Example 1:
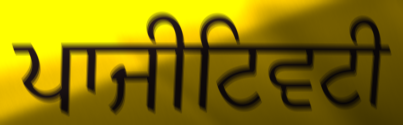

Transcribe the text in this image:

ਪਾਜੀਟਿਵਟੀ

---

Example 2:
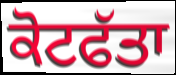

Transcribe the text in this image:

ਕੋਟਫੱਤਾ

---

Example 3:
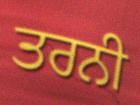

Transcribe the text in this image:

ਤਰਨੀ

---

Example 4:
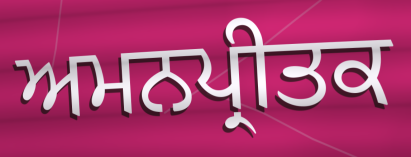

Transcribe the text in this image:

ਅਮਨਪ੍ਰੀਤਕ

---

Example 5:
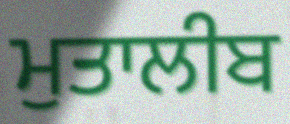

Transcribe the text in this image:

ਮੁਤਾਲੀਬ